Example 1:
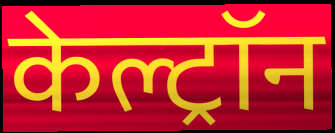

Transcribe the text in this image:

केल्ट्रॉन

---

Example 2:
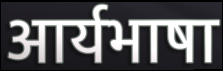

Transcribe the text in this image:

आर्यभाषा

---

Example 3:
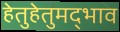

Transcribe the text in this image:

हेतुहेतुमद्भाव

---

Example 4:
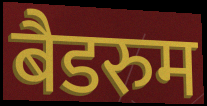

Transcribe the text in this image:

बैडरुम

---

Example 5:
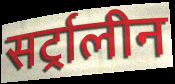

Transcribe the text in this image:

सर्ट्रालीन